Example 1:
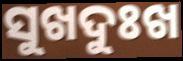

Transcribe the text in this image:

ସୁଖଦୁଃଖ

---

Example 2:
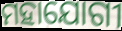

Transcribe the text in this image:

ମହାଯୋଗୀ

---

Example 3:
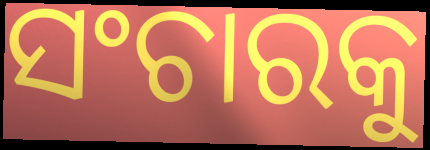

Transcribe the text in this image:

ସଂଚାରକୁ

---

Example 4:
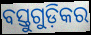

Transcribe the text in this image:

ବସ୍ତୁଗୁଡ଼ିକର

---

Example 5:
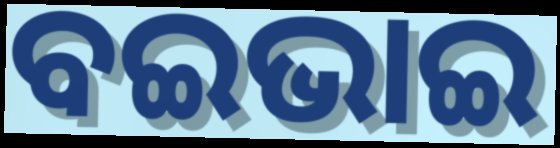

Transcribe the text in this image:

ବଇଭାଇ